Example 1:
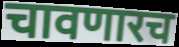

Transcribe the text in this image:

चावणारच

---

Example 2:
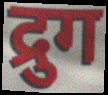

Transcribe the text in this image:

द्रुग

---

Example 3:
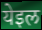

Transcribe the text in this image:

येइल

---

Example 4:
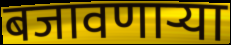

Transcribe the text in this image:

बजावणाऱ्या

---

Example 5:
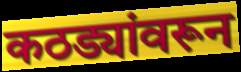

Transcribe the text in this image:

कठड्यांवरून